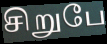
சிறுபே